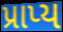
પ્રાપ્ય